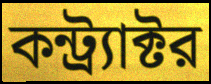
কন্ট্র্যাক্টর